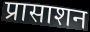
प्रासाशन